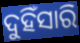
ଦୁହିଁସାରି